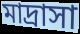
মাদ্রাসা